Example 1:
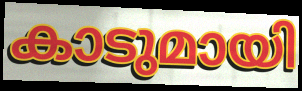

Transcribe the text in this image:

കാടുമായി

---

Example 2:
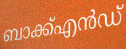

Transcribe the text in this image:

ബാക്ക്എൻഡ്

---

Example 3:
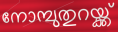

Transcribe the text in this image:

നോമ്പുതുറയ്ക്ക്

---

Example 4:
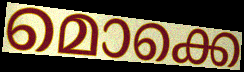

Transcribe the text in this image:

മൊക്കെ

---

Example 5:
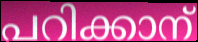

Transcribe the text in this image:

പറിക്കാന്